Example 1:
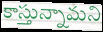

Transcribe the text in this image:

కాస్తున్నామని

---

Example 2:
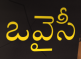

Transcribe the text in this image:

ఒవైసీ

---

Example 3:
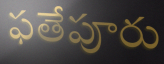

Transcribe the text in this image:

ఫతేపూరు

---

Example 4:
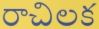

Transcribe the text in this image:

రాచిలక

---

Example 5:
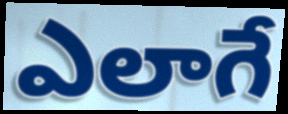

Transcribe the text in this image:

ఎలాగే